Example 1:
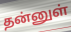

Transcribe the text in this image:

தன்னுள்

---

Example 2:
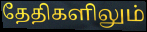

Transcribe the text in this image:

தேதிகளிலும்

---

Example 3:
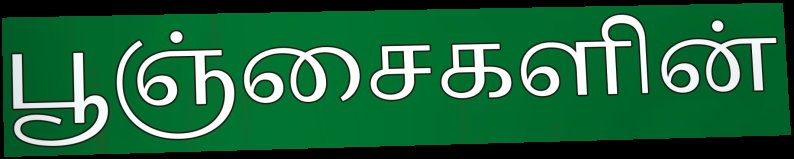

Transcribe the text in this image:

பூஞ்சைகளின்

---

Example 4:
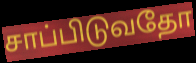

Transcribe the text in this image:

சாப்பிடுவதோ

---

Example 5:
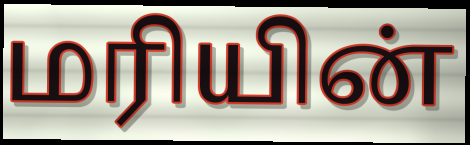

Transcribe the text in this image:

மரியின்